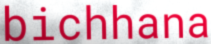
bichhana